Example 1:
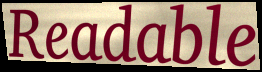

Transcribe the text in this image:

Readable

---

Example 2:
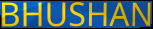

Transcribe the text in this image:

BHUSHAN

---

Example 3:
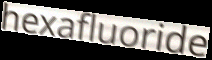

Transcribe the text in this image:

hexafluoride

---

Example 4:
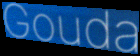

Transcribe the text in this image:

Gouda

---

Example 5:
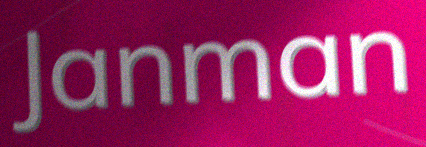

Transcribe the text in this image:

Janman